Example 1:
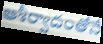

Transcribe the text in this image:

ఆశీర్వాదంతోనే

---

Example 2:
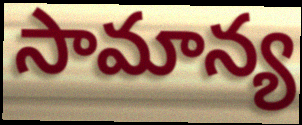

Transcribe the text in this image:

సామాన్య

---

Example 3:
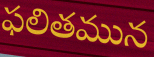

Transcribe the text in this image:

ఫలితమున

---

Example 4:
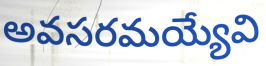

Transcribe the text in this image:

అవసరమయ్యేవి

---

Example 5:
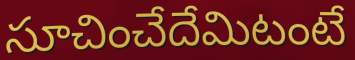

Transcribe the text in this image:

సూచించేదేమిటంటే